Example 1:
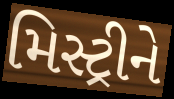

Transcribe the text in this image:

મિસ્ટ્રીને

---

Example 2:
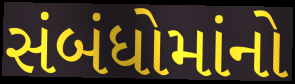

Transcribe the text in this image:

સંબંધોમાંનો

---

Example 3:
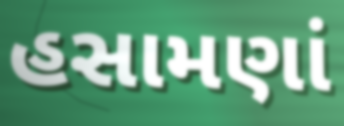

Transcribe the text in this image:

હસામણાં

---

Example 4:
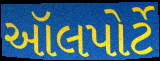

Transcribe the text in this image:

ઑલપોર્ટે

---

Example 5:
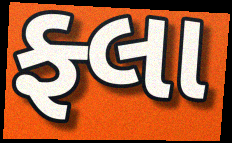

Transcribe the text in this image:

ફ્લા